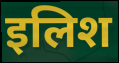
इलिश